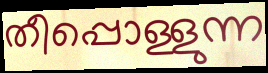
തീപ്പൊള്ളുന്ന